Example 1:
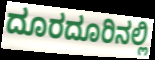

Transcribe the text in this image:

ದೂರದೂರಿನಲ್ಲಿ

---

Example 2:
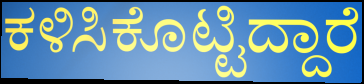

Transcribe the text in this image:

ಕಳಿಸಿಕೊಟ್ಟಿದ್ದಾರೆ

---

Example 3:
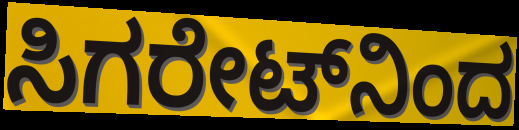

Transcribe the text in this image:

ಸಿಗರೇಟ್‌ನಿಂದ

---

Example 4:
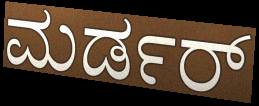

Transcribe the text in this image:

ಮರ್ಡರ್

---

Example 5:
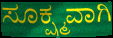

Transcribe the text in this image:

ಸೂಕ್ಷ್ಮವಾಗಿ